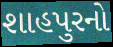
શાહપુરનો